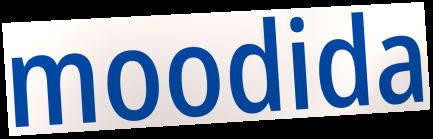
moodida